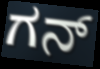
ಗನ್